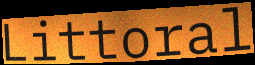
Littoral